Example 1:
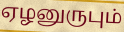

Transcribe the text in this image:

ஏழனுருபும்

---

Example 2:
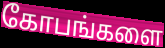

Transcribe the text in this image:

கோபங்களை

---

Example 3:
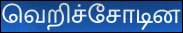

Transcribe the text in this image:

வெறிச்சோடின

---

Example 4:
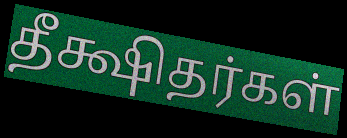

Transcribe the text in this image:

தீக்ஷிதர்கள்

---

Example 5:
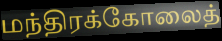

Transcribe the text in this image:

மந்திரக்கோலைத்